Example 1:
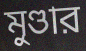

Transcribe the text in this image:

মুণ্ডার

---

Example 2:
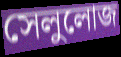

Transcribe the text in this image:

সেলুলোজ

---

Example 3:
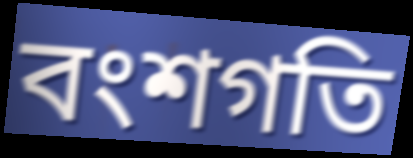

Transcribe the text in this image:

বংশগতি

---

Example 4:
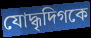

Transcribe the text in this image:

যোদ্ধৃদিগকে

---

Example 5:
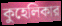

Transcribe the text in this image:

কুহেলিকার